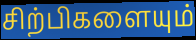
சிற்பிகளையும்